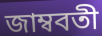
জাম্ববতী